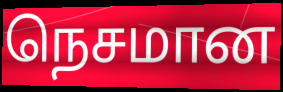
நெசமான